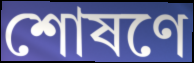
শোষণে